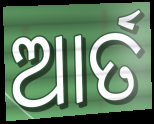
ଆର୍ତ